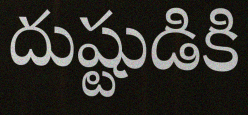
దుష్టుడికి